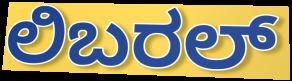
ಲಿಬರಲ್